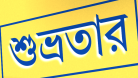
শুভ্রতার